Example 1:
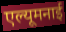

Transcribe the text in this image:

एल्यूमनाई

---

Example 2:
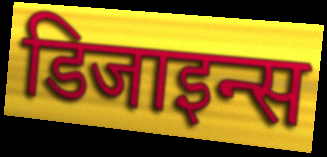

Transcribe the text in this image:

डिजाइन्स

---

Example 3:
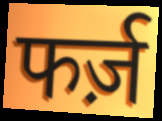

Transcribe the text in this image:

फर्ज़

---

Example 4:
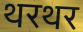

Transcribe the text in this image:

थरथर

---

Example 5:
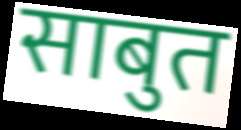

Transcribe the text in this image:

साबुत